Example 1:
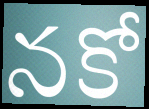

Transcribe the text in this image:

నకో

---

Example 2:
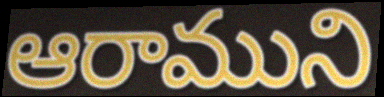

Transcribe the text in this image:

ఆరాముని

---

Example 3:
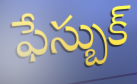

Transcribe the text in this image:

ఫేస్బుక్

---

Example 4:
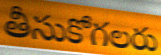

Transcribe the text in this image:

తీసుకోగలరు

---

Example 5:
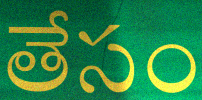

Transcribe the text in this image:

తేసం